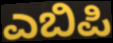
ಎಬಿಪಿ